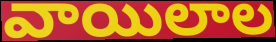
వాయిలాల